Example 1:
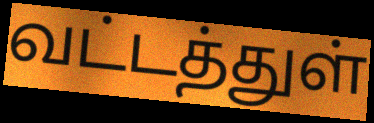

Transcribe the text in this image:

வட்டத்துள்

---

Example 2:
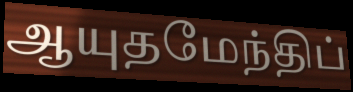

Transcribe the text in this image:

ஆயுதமேந்திப்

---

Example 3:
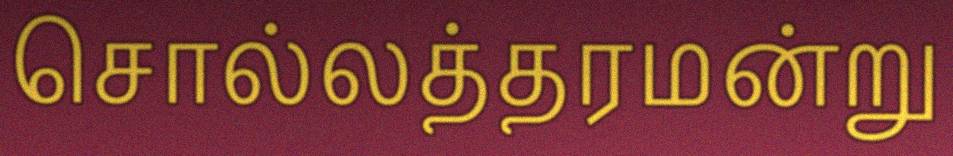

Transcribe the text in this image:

சொல்லத்தரமன்று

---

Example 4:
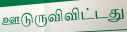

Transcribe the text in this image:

ஊடுருவிவிட்டது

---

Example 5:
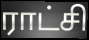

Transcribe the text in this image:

ராட்சி